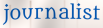
journalist